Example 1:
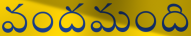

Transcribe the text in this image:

వందమంది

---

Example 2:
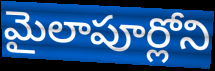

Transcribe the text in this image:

మైలాపూర్లోని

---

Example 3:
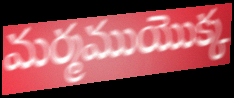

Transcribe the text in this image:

మర్మముయొక్క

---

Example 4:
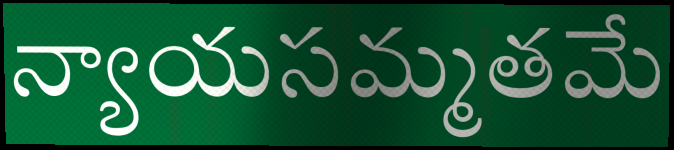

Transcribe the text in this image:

న్యాయసమ్మతమే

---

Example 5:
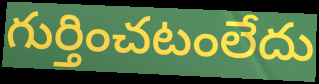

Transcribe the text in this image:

గుర్తించటంలేదు